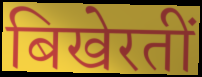
बिखेरतीं